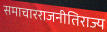
समाचारराजनीतिराज्य